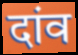
दांव